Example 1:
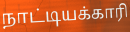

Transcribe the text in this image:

நாட்டியக்காரி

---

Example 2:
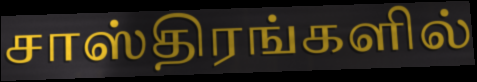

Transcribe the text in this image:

சாஸ்திரங்களில்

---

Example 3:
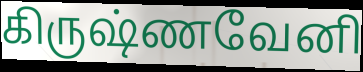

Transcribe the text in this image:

கிருஷ்ணவேனி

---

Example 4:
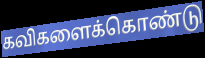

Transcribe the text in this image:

கவிகளைக்கொண்டு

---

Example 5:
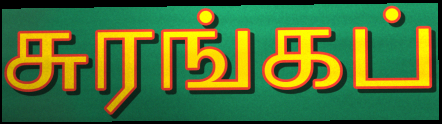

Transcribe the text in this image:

சுரங்கப்